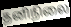
தனிநிலை